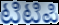
ಟಿಟಿಪಿ